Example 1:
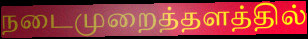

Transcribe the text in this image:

நடைமுறைத்தளத்தில்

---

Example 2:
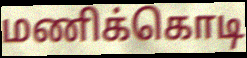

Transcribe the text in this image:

மணிக்கொடி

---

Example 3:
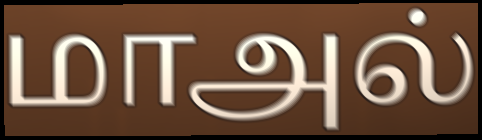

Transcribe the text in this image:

மாஅல்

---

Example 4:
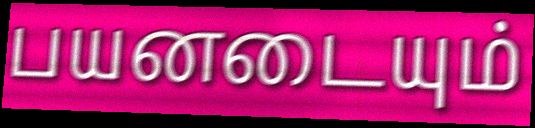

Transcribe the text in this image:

பயனடையும்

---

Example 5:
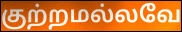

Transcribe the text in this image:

குற்றமல்லவே